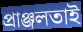
প্রাঞ্জলতাই